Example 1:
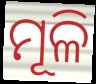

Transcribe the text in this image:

ମୂଳି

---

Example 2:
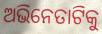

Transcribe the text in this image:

ଅଭିନେତାଟିକୁ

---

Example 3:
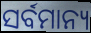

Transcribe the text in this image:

ସର୍ବମାନ୍ୟ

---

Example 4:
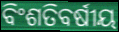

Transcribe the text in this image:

ବିଂଶତିବର୍ଷୀୟ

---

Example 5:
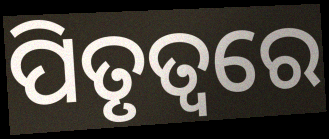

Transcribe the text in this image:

ପିତୃତ୍ୱରେ